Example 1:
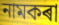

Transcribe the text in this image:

নামকৰা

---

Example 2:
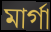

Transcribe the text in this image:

মাৰ্গা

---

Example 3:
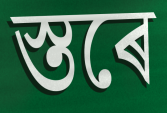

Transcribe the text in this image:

স্তৰে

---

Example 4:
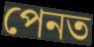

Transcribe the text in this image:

পেনত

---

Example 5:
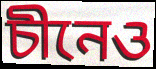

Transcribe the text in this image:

চীনেও